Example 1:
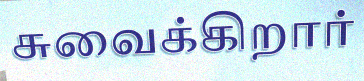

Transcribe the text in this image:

சுவைக்கிறார்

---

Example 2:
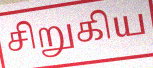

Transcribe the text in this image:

சிறுகிய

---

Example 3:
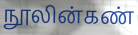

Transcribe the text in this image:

நூலின்கண்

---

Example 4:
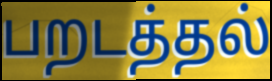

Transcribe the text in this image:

பறடத்தல்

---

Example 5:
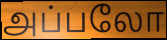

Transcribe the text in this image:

அப்பலோ